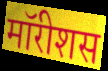
मॉरीशस